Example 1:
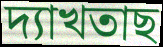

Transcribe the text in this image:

দ্যাখতাছ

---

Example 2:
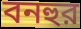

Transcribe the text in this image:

বনহুর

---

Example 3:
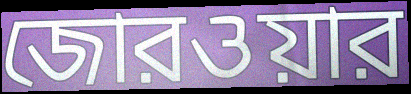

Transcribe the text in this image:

জোরওয়ার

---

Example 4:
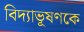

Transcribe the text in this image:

বিদ্যাভূষণকে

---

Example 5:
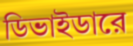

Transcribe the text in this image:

ডিভাইডারে